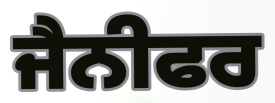
ਜੈਨੀਫਰ